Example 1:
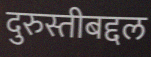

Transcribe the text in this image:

दुरुस्तीबद्दल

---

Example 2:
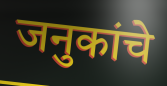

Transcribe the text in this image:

जनुकांचे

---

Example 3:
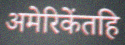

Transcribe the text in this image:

अमेरिकेंतहि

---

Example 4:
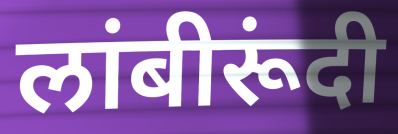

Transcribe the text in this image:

लांबीरूंदी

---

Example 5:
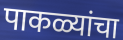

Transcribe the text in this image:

पाकळ्यांचा